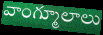
వాంగ్మూలాలు